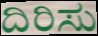
ದಿರಿಸು